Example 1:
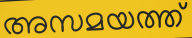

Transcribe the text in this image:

അസമയത്ത്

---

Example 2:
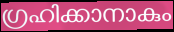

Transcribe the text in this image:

ഗ്രഹിക്കാനാകും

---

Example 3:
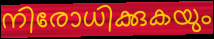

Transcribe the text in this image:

നിരോധിക്കുകയും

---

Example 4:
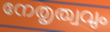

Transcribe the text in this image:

നേതൃത്വവും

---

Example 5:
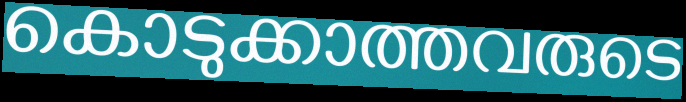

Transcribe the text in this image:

കൊടുക്കാത്തവരുടെ